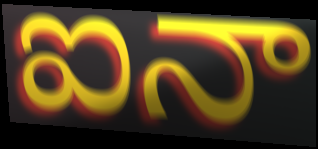
ఐనా